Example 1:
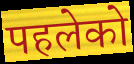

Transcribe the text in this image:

पहलेको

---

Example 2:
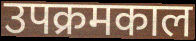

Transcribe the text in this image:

उपक्रमकाल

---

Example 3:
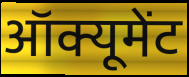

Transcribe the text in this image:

ऑक्यूमेंट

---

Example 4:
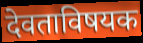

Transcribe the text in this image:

देवताविषयक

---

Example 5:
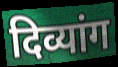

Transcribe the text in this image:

दिव्यांग